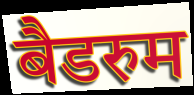
बैडरुम